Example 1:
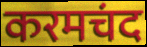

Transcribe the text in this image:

करमचंद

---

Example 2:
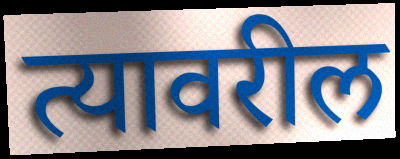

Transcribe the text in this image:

त्यावरील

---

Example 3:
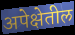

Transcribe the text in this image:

अपेक्षेतील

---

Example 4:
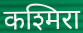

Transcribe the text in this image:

कश्मिरा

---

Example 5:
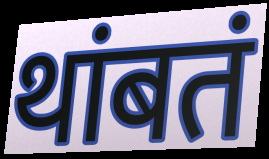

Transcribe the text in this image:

थांबतं